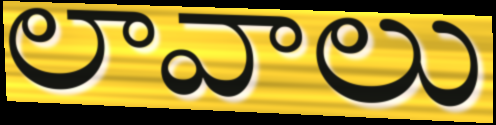
లావాలు